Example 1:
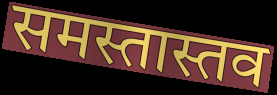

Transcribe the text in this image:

समस्तास्तव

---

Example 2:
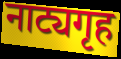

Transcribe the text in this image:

नाट्यगृह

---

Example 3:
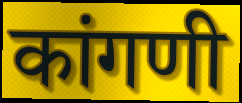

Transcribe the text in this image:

कांगणी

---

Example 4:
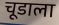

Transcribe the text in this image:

चूडाला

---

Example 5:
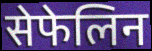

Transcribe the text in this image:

सेफेलिन